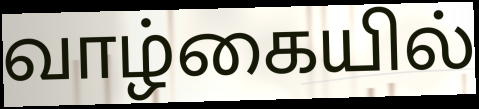
வாழ்கையில்